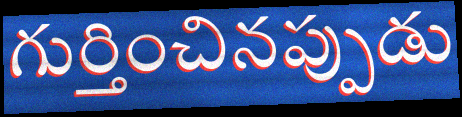
గుర్తించినప్పుడు